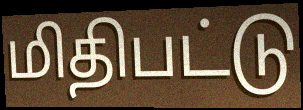
மிதிபட்டு